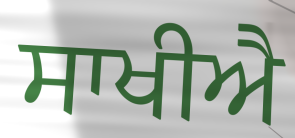
ਸਾਖੀਐ